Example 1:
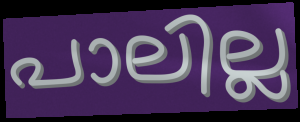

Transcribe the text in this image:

പാലില്ല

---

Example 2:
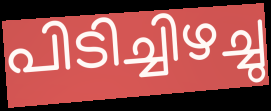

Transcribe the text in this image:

പിടിച്ചിഴച്ചു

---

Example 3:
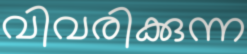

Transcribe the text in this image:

വിവരിക്കുന്ന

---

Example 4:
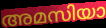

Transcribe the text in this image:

അമസിയാ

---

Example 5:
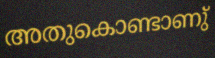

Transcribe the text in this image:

അതുകൊണ്ടാണു്